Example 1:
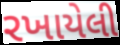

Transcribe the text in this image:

રખાયેલી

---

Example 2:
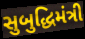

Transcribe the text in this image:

સુબુદ્ધિમંત્રી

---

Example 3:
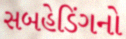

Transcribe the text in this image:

સબહેડિંગનો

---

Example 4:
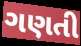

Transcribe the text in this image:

ગણતી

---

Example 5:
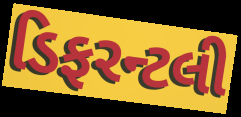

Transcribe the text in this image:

ડિફરન્ટલી